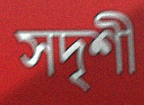
সদৃশী